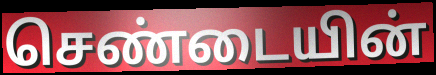
செண்டையின்